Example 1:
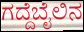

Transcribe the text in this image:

ಗದ್ದೆಬೈಲಿನ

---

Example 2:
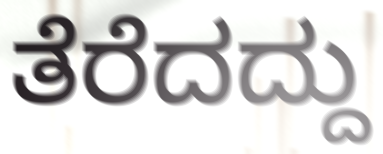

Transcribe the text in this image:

ತೆರೆದದ್ದು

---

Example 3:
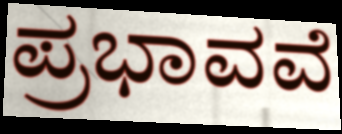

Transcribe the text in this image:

ಪ್ರಭಾವವೆ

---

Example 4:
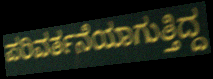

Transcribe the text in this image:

ಪರಿವರ್ತನೆಯಾಗುತ್ತಿದ್ದ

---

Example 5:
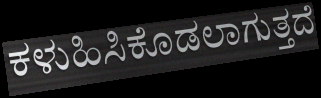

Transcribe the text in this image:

ಕಳುಹಿಸಿಕೊಡಲಾಗುತ್ತದೆ